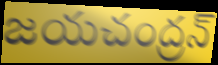
జయచంద్రన్